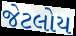
જેટલોય